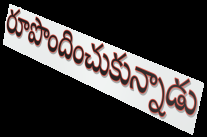
రూపొందించుకున్నాడు